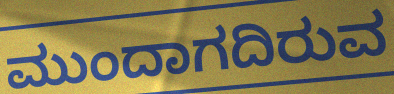
ಮುಂದಾಗದಿರುವ